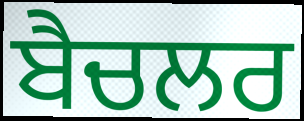
ਬੈਚਲਰ